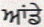
ਆਂਡੇ